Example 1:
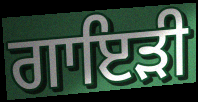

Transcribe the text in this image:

ਗਾਇੜੀ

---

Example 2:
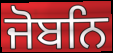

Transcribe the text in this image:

ਜੋਬਨਿ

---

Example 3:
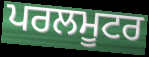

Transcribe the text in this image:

ਪਰਲਮੂਟਰ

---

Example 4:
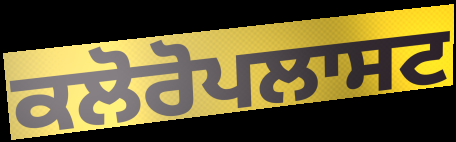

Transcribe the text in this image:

ਕਲੋਰੋਪਲਾਸਟ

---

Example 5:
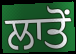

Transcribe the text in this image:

ਲਾਤੋਂ